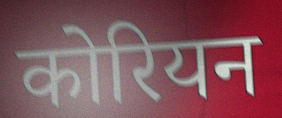
कोरियन